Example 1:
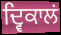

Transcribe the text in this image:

ਦ੍ਵਿਕਾਲਂ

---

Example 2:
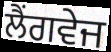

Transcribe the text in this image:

ਲੈਂਗਵੇਜ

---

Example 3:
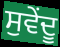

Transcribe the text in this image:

ਸੁਵੇਂਦੂ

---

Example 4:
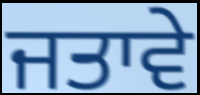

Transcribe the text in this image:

ਜਤਾਵੇ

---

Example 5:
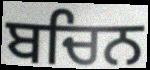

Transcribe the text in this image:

ਬਚਿਨ